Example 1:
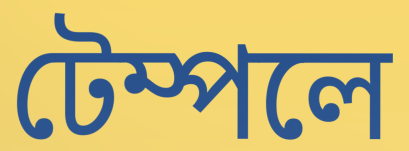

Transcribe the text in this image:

টেম্পলে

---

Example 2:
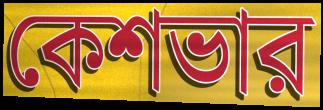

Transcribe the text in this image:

কেশভার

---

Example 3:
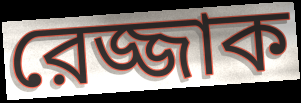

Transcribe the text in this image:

রেজ্জাক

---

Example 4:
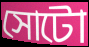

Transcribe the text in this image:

সোটো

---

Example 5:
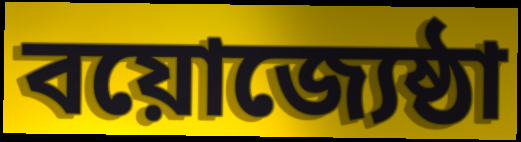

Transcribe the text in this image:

বয়োজ্যেষ্ঠা